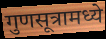
गुणसूत्रामध्ये